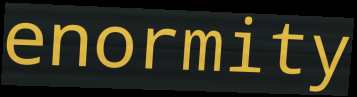
enormity